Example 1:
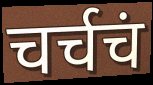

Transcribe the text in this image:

चर्चचं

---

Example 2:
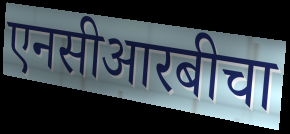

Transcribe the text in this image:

एनसीआरबीचा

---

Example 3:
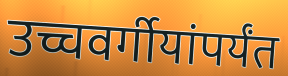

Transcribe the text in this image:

उच्चवर्गीयांपर्यंत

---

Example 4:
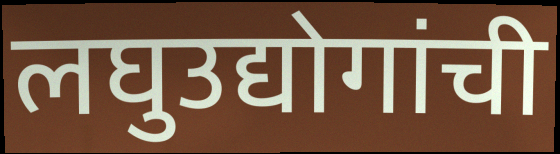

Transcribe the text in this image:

लघुउद्योगांची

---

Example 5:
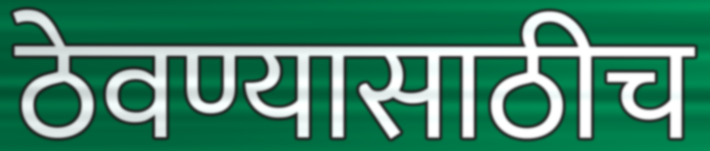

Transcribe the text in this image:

ठेवण्यासाठीच